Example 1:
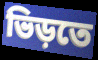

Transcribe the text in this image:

ভিড়তে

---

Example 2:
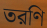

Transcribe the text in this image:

তরণি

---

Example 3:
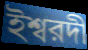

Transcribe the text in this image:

ইশ্বরদী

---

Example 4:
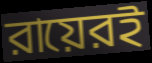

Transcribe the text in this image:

রায়েরই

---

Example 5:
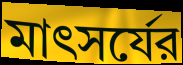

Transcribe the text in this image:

মাৎসর্যের